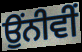
ਉੰਨੀਵੀਂ